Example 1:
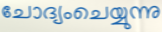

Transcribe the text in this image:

ചോദ്യംചെയ്യുന്നു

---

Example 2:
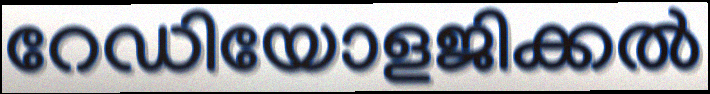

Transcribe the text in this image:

റേഡിയോളജിക്കൽ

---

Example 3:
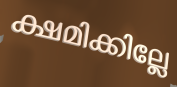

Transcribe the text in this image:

ക്ഷമിക്കില്ലേ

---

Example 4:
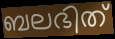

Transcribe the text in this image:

ബലഭിത്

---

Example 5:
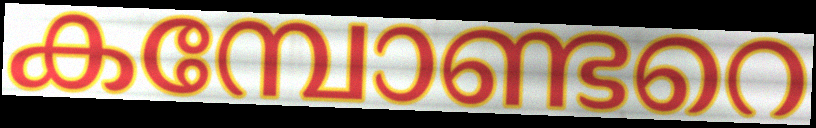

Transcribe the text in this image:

കമ്പോണ്ടറെ